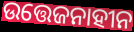
ଉତ୍ତେଜନାହୀନ